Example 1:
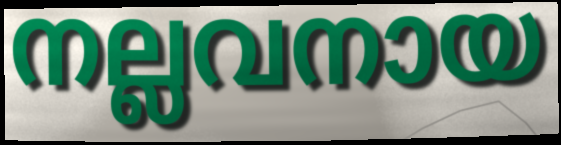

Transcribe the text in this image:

നല്ലവനായ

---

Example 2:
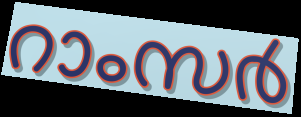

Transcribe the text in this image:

റാംസർ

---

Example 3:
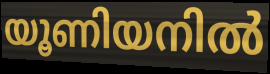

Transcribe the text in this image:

യൂണിയനിൽ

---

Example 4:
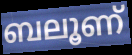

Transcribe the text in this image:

ബലൂണ്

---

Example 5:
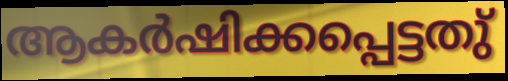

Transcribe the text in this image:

ആകർഷിക്കപ്പെട്ടതു്